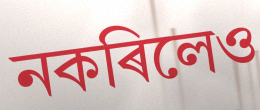
নকৰিলেও